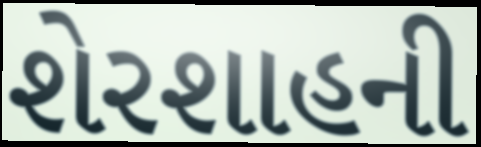
શેરશાહની